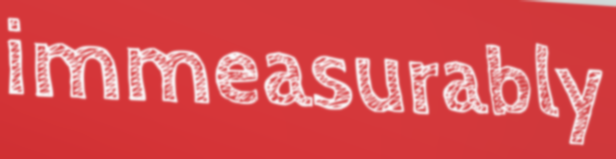
immeasurably